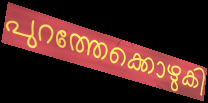
പുറത്തേക്കൊഴുകി